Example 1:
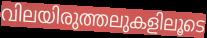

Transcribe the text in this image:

വിലയിരുത്തലുകളിലൂടെ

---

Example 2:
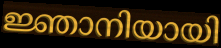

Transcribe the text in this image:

ജ്ഞാനിയായി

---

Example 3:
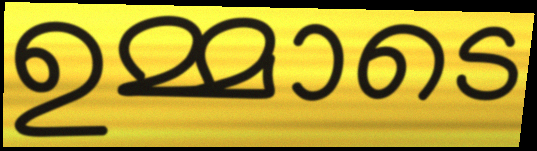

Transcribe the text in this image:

ഉമ്മാടെ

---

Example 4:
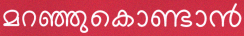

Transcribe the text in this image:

മറഞ്ഞുകൊണ്ടാൻ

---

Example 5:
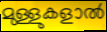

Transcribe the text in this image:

മുള്ളുകളാൽ